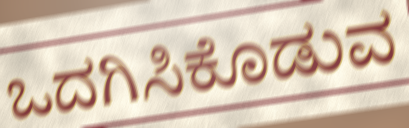
ಒದಗಿಸಿಕೊಡುವ